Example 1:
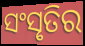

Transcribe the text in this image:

ସଂସୃତିର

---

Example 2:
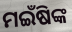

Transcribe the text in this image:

ମଇଁଷିଙ୍କ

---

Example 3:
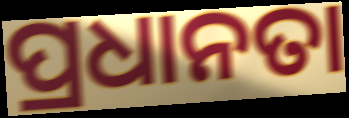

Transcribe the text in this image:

ପ୍ରଧାନତା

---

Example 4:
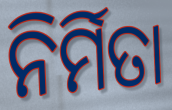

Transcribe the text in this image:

ନିର୍ମିତା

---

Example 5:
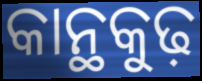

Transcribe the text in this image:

କାନ୍ଥକୁଢ଼